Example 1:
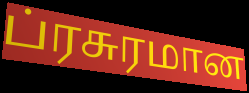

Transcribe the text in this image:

ப்ரசுரமான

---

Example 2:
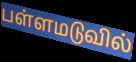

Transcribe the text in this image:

பள்ளமடுவில்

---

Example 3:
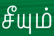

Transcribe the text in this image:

சீயும்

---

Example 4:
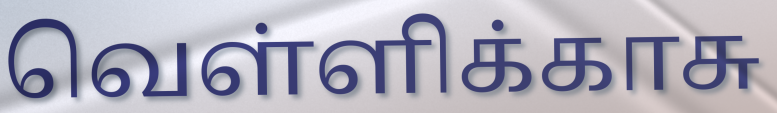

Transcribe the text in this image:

வெள்ளிக்காசு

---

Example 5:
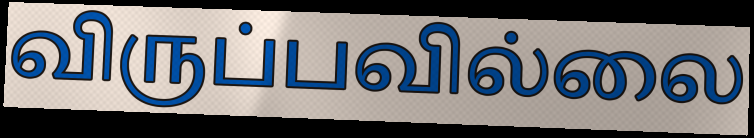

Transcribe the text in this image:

விருப்பவில்லை